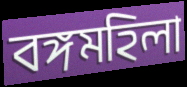
বঙ্গমহিলা